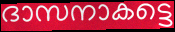
ദാസനാകട്ടെ